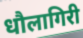
धौलागिरी